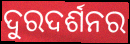
ଦୁରଦର୍ଶନର